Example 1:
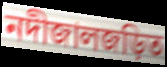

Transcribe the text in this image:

নদীজালজড়িত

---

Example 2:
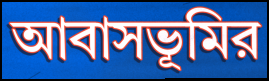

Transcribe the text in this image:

আবাসভূমির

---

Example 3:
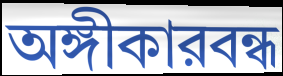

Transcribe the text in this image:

অঙ্গীকারবন্ধ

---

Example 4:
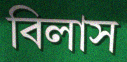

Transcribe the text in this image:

বিলাস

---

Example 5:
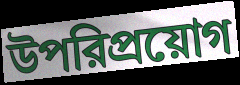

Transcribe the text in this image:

উপরিপ্রয়োগ